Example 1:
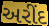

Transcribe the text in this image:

અરીંદ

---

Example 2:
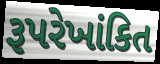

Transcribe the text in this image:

રૂપરેખાંકિત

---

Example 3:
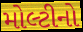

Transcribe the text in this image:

મોલ્ટીનો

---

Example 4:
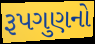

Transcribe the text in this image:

રૂપગુણનો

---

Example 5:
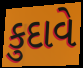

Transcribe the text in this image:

કુદાવે